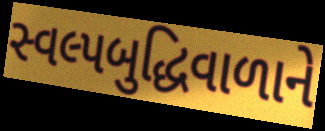
સ્વલ્પબુદ્ધિવાળાને